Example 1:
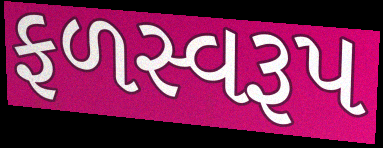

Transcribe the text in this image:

ફળસ્વરૂપ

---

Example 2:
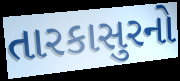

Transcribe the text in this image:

તારકાસુરનો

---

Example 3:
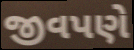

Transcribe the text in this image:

જીવપણે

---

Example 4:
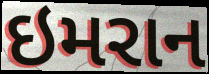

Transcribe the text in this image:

ઇમરાન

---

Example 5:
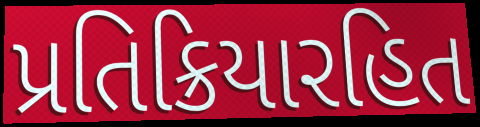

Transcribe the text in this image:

પ્રતિક્રિયારહિત